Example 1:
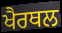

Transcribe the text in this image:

ਖੈਰਥਲ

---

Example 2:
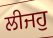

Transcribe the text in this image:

ਲੀਜਹੁ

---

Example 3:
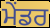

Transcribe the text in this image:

ਮੇਂਡਰ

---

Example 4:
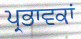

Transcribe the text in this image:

ਪ੍ਰਭਾਵਕਾਂ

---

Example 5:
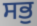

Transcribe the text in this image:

ਸਭੁ